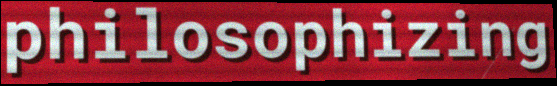
philosophizing